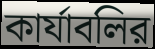
কার্যাবলির